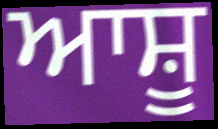
ਆਸ਼ੂ